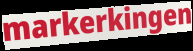
markerkingen